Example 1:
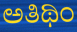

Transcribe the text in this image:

ಅತಿಥಿಂ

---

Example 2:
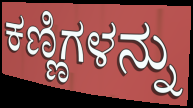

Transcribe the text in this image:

ಕಣ್ಣಿಗಳನ್ನು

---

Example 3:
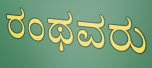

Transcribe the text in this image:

ರಂಥವರು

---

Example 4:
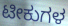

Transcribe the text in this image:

ಟೀಕುಗಳ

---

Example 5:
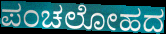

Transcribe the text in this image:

ಪಂಚಲೋಹದ